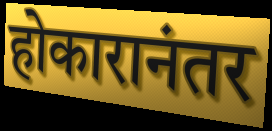
होकारानंतर